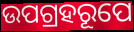
ଉପଗ୍ରହରୂପେ